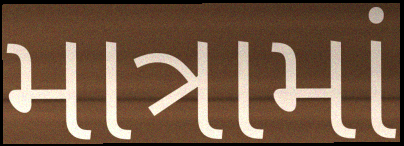
માત્રામાં